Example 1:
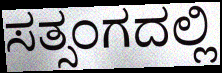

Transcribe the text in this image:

ಸತ್ಸಂಗದಲ್ಲಿ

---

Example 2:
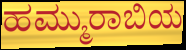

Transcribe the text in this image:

ಹಮ್ಮುರಾಬಿಯ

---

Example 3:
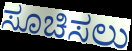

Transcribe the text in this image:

ಸೂಚಿಸಲು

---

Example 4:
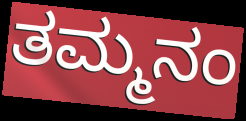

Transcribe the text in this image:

ತಮ್ಮನಂ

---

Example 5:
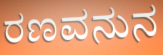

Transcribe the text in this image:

ರಣವನುನ